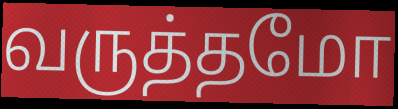
வருத்தமோ